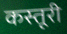
कस्तूरी